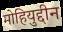
मोहियुद्दीन